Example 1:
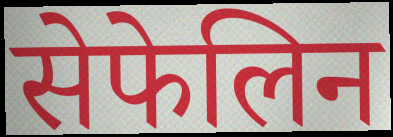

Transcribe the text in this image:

सेफेलिन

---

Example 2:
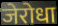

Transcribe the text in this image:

जेरोधा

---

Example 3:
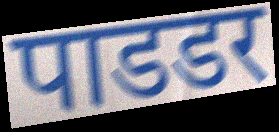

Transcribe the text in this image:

पाडडर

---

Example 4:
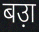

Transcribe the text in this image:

बउ़ा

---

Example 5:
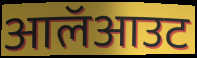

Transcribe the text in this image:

आलॅआउट